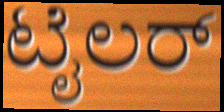
ಟೈಲರ್